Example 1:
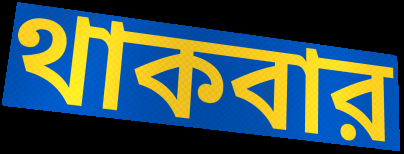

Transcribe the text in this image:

থাকবার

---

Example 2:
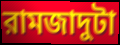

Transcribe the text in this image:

রামজাদুটা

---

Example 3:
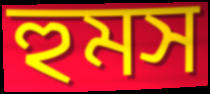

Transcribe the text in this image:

হুমস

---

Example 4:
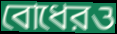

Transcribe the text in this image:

বোধেরও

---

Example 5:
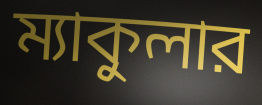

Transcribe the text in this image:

ম্যাকুলার